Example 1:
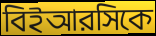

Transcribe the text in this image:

বিইআরসিকে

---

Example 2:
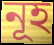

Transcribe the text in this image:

নূহ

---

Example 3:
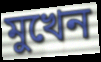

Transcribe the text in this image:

মুখেন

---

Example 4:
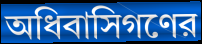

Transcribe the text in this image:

অধিবাসিগণের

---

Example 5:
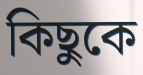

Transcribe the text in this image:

কিছুকে